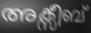
അക്സീബ്